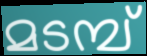
മടമ്പ്